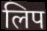
लिप